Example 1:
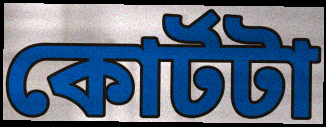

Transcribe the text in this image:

কোর্টটা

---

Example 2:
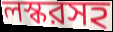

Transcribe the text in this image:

লস্করসহ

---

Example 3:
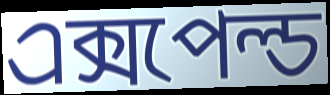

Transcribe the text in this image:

এক্সপেল্ড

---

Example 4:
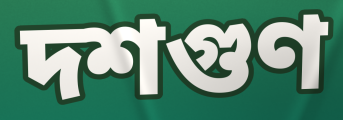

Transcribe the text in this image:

দশগুণ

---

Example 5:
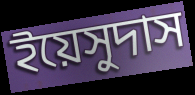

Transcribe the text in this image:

ইয়েসুদাস